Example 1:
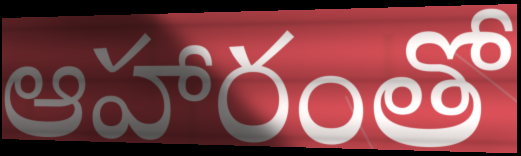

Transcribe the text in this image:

ఆహారంతో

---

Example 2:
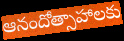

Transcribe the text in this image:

ఆనందోత్సాహాలకు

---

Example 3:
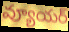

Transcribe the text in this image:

వ్యూయర్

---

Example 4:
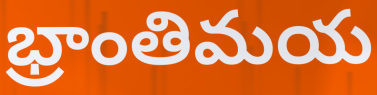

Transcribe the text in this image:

భ్రాంతిమయ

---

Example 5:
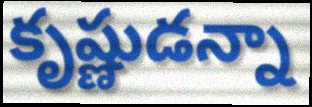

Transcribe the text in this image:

కృష్ణుడన్నా